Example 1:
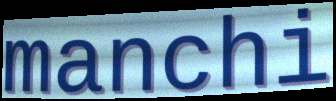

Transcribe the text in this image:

manchi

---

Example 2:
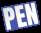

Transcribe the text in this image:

PEN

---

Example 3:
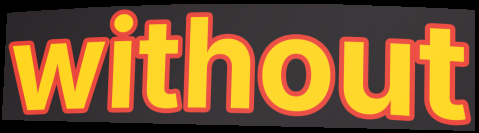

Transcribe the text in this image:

without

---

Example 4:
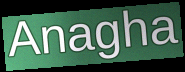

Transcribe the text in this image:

Anagha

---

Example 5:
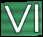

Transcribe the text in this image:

VI